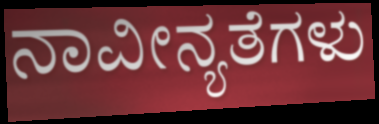
ನಾವೀನ್ಯತೆಗಳು